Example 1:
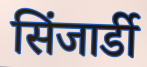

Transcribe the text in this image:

सिंजार्डी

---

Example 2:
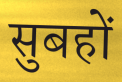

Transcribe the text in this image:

सुबहों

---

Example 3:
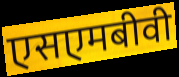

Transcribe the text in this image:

एसएमबीवी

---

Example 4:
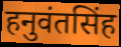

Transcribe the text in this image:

हनुवंतसिंह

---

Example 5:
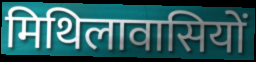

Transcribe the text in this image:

मिथिलावासियों